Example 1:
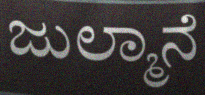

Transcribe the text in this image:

ಜುಲ್ಮಾನೆ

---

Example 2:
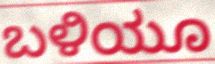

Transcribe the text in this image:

ಬಳಿಯೂ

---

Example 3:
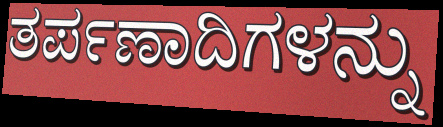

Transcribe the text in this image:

ತರ್ಪಣಾದಿಗಳನ್ನು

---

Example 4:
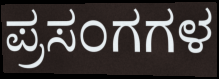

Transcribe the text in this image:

ಪ್ರಸಂಗಗಳ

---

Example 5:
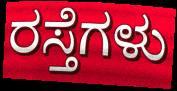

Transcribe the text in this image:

ರಸ್ತೆಗಳು